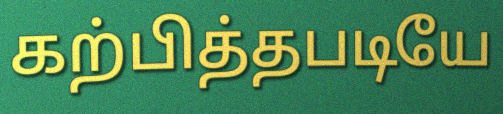
கற்பித்தபடியே